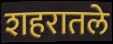
शहरातले